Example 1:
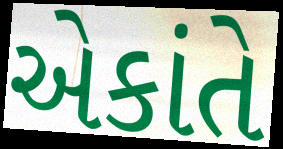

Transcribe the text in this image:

એકાંતે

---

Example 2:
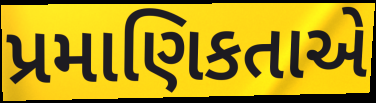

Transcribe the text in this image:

પ્રમાણિકતાએ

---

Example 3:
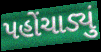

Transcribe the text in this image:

પહોંચાડ્યું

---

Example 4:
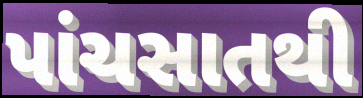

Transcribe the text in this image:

પાંચસાતથી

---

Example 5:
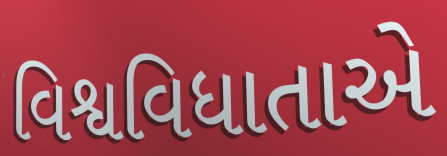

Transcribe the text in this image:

વિશ્વવિધાતાએ